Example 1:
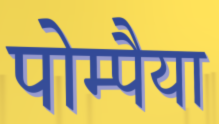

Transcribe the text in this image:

पोम्पैया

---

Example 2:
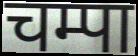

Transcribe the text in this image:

चम्पा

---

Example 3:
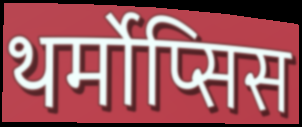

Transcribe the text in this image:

थर्मोप्सिस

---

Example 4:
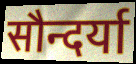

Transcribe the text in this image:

सौन्दर्या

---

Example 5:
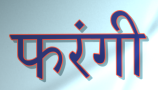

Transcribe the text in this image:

फरंगी